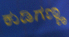
ಕುಡಿಗಣ್ಣ